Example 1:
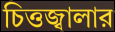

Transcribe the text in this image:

চিত্তজ্বালার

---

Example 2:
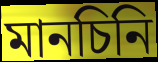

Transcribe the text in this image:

মানচিনি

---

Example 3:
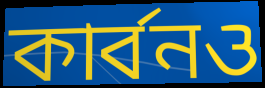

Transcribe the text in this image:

কার্বনও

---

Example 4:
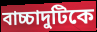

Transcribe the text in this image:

বাচ্চাদুটিকে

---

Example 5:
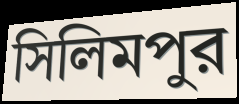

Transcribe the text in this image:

সিলিমপুর